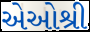
એઓશ્રી